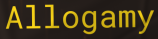
Allogamy